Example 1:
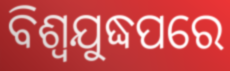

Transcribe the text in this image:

ବିଶ୍ୱଯୁଦ୍ଧପରେ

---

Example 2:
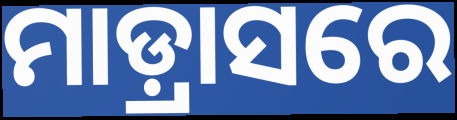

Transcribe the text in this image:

ମାଡ଼୍ରାସରେ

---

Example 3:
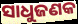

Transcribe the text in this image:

ସାଧୁଜଣକ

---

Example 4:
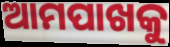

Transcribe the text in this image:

ଆମପାଖକୁ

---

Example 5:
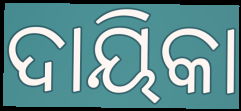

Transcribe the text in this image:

ଦାୟିକା